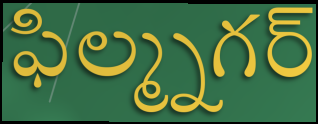
ఫిల్మ్నగర్